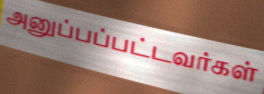
அனுப்பப்பட்டவர்கள்